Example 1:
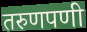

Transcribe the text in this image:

तरुणपणी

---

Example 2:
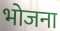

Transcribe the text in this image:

भोजना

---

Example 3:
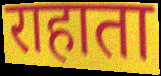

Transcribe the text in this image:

राहाता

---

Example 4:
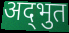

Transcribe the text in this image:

अद्‌भुत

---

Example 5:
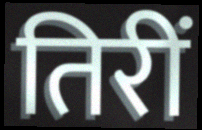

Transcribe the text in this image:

तिरीं